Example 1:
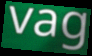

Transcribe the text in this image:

vag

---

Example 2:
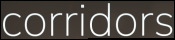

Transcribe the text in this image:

corridors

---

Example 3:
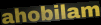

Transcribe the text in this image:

ahobilam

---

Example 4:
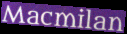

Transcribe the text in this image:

Macmilan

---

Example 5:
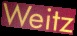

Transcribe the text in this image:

Weitz